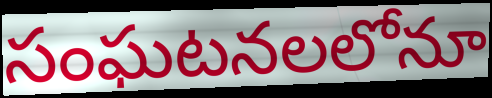
సంఘటనలలోనూ